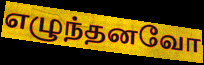
எழுந்தனவோ